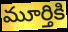
మూర్తికి